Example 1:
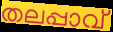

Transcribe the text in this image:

തലപ്പാവ്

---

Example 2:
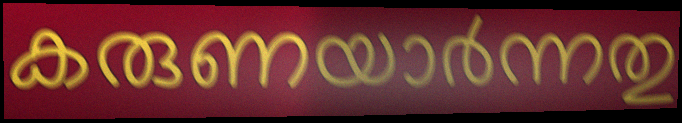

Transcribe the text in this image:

കരുണയാർന്നതു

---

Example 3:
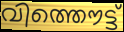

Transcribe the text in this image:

വിത്തൌട്ട്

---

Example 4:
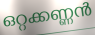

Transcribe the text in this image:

ഒറ്റക്കണ്ണൻ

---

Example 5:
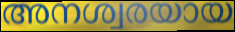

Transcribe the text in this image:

അനശ്വരയായ